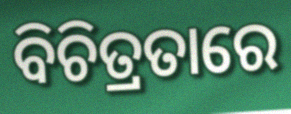
ବିଚିତ୍ରତାରେ